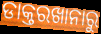
ଡାକ୍ତରଖାନାରୁ